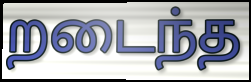
றடைந்த